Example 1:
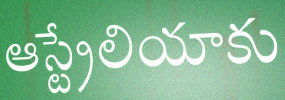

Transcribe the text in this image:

ఆస్ట్రేలియాకు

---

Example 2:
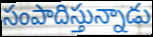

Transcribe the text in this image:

సంపాదిస్తున్నాడు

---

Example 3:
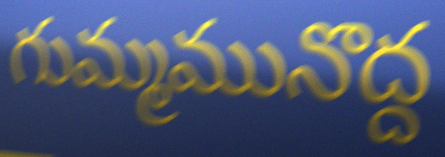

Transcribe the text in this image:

గుమ్మమునొద్ద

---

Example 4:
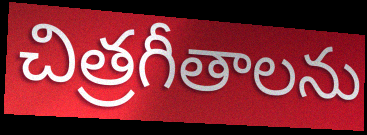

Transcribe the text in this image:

చిత్రగీతాలను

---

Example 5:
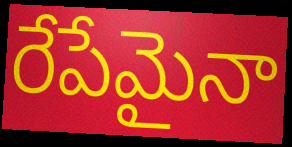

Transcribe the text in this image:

రేపేమైనా